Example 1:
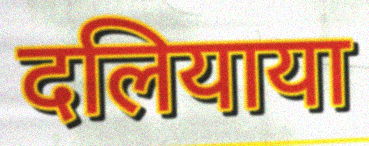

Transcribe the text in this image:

दलियाया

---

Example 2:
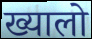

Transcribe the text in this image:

ख्यालो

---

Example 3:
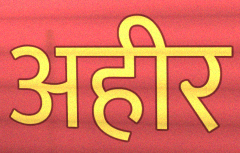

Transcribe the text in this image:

अहीर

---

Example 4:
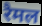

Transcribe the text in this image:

रैमल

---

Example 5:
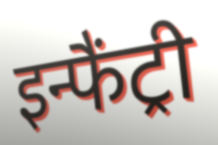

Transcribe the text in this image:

इन्फैंट्री